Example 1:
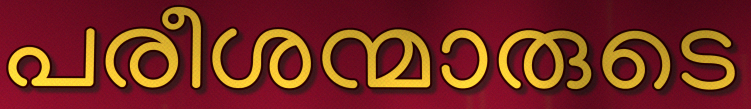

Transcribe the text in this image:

പരീശന്മാരുടെ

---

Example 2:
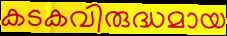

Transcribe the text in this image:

കടകവിരുദ്ധമായ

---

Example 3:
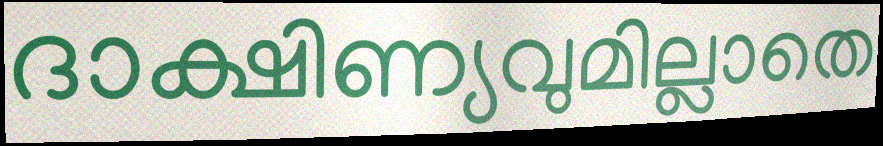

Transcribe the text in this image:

ദാക്ഷിണ്യവുമില്ലാതെ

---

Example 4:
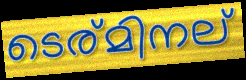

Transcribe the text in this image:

ടെര്മിനല്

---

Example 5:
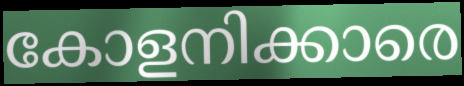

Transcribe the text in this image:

കോളനിക്കാരെ